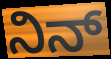
ನಿನ್